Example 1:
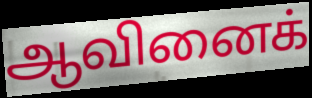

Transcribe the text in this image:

ஆவினைக்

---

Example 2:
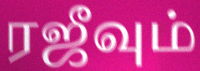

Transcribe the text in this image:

ரஜீவும்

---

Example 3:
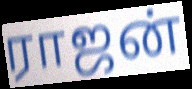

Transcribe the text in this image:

ராஜன்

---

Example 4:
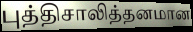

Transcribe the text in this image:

புத்திசாலித்தனமான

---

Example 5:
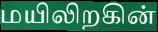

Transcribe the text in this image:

மயிலிறகின்